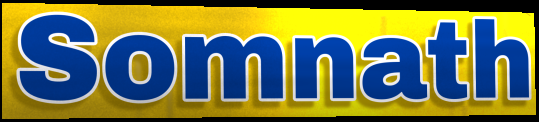
Somnath